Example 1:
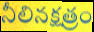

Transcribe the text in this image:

నీలినక్షత్రం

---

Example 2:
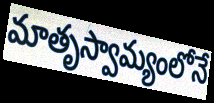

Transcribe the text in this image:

మాతృస్వామ్యంలోనే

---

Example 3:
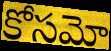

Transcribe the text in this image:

కోసమో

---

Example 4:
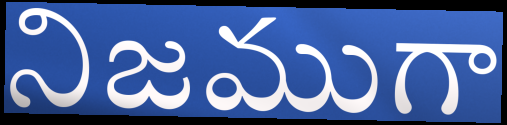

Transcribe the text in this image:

నిజముగా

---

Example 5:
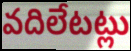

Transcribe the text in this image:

వదిలేటట్లు